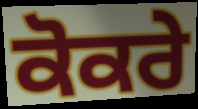
ਕੋਕਰੇ